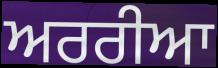
ਅਰਰੀਆ